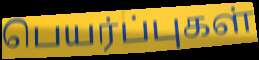
பெயர்ப்புகள்